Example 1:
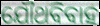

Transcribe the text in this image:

ଯୌଥବିବାହ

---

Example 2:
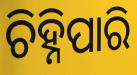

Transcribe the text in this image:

ଚିହ୍ନିପାରି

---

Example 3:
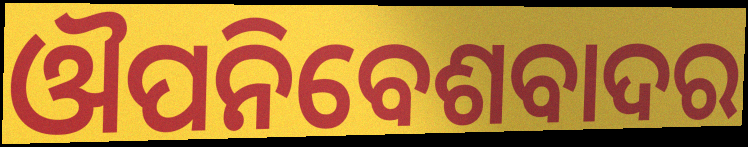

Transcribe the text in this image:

ଔପନିବେଶବାଦର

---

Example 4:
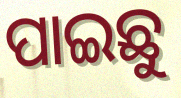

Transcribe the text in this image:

ପାଇଛୁ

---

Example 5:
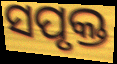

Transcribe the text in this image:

ସପୃକ୍ତ